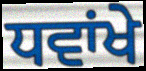
ਧਵਾਂਖੇ